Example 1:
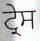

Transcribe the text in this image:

ਟ੍ਰੇਸ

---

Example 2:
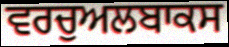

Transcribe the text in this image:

ਵਰਚੁਅਲਬਾਕਸ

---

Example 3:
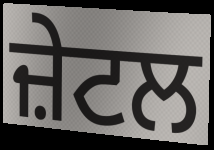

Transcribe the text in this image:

ਜ਼ੇਟਲ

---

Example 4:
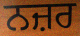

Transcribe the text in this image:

ਨਜ਼ਰ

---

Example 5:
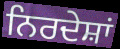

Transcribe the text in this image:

ਨਿਰਦੇਸ਼ਾਂ